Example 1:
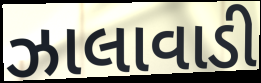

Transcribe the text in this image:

ઝાલાવાડી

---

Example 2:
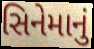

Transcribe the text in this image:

સિનેમાનું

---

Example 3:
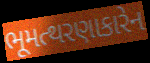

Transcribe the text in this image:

ભૂમત્થરણાકારેન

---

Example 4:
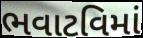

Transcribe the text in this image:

ભવાટવિમાં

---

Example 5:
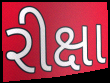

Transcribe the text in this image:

રીક્ષા